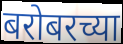
बरोबरच्या